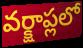
వర్క్షాప్లలో